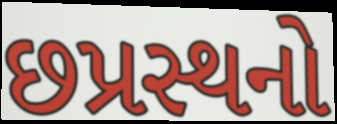
છપ્રસ્થનો